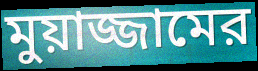
মুয়াজ্জামের